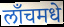
लाँचमधे